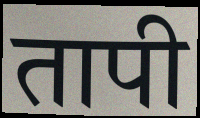
तापी